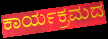
ಕಾರ್ಯಕ್ರಮದ